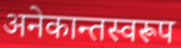
अनेकान्तस्वरूप